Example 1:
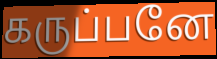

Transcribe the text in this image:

கருப்பனே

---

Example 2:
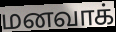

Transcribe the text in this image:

மனவாக்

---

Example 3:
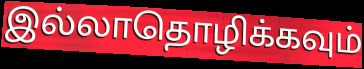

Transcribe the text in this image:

இல்லாதொழிக்கவும்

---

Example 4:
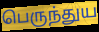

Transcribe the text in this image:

பெருந்துய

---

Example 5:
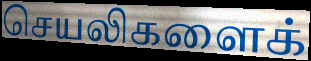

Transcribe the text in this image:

செயலிகளைக்